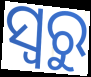
ସ୍ୱରୁ